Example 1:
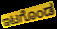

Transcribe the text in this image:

ಇಟಗೊಂಡ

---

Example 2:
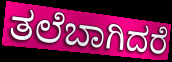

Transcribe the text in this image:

ತಲೆಬಾಗಿದರೆ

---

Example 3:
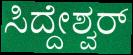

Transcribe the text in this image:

ಸಿದ್ದೇಶ್ವರ್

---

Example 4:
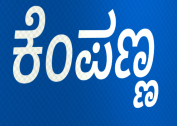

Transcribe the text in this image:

ಕೆಂಪಣ್ಣ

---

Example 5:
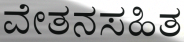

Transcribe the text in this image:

ವೇತನಸಹಿತ